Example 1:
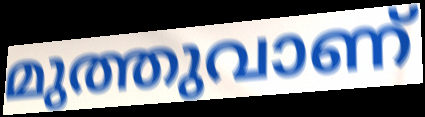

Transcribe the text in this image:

മുത്തുവാണ്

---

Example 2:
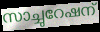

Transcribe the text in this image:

സാച്ചുറേഷന്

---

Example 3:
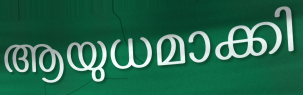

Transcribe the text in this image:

ആയുധമാക്കി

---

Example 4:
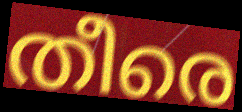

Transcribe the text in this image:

തീരെ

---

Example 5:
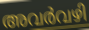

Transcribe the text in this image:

അവർവഴി